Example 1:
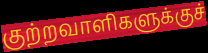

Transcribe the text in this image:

குற்றவாளிகளுக்குச்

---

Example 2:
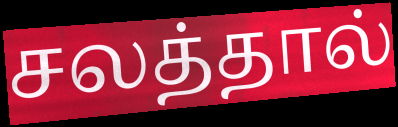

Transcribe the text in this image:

சலத்தால்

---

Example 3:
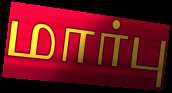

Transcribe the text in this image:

மார்பு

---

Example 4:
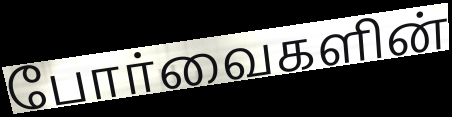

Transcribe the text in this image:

போர்வைகளின்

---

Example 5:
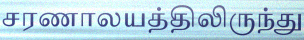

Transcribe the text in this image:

சரணாலயத்திலிருந்து